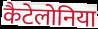
कैटेलोनिया